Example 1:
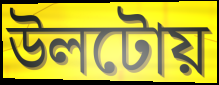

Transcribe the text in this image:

উলটোয়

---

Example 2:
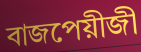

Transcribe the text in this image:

বাজপেয়ীজী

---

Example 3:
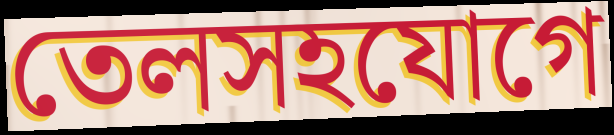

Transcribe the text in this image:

তেলসহযোগে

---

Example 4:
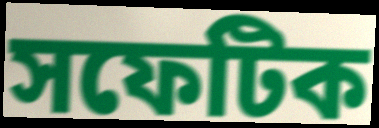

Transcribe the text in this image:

সফেটিক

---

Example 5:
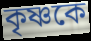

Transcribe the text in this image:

কৃষ্ণকে